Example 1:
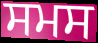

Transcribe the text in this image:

ਸਮਸ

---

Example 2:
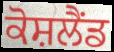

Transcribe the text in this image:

ਕੋਸ਼ਲੈਂਡ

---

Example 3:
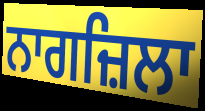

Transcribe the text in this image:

ਨਾਗਜ਼ਿਲਾ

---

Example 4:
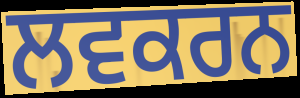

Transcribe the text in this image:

ਲਵਕਰਨ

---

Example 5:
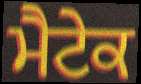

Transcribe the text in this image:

ਮੈਟੇਕ